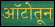
ऑटोतून